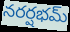
నరర్షభమ్